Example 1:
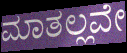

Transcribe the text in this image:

ಮಾತಲ್ಲವೇ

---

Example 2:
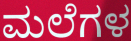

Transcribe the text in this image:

ಮಲೆಗಳ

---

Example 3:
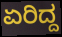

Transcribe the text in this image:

ಏರಿದ್ದ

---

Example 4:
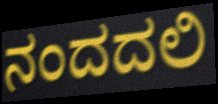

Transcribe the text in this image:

ನಂದದಲಿ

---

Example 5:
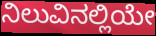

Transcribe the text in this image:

ನಿಲುವಿನಲ್ಲಿಯೇ